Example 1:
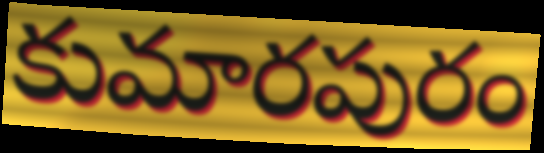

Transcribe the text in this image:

కుమారపురం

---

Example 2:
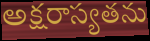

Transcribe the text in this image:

అక్షరాస్యతను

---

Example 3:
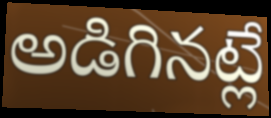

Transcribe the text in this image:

అడిగినట్లే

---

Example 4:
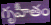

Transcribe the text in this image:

గృహీతం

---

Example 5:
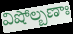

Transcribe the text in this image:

విషోల్బణాః